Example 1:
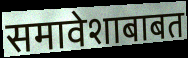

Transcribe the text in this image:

समावेशाबाबत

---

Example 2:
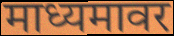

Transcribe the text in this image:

माध्यमावर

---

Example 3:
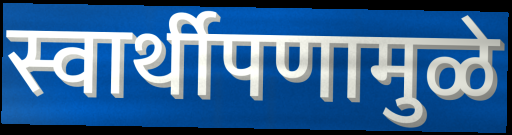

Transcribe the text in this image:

स्वार्थीपणामुळे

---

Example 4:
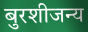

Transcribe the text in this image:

बुरशीजन्य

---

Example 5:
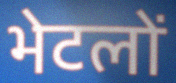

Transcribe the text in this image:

भेटलों